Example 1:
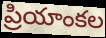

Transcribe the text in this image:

ప్రియాంకల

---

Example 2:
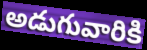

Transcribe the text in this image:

అడుగువారికి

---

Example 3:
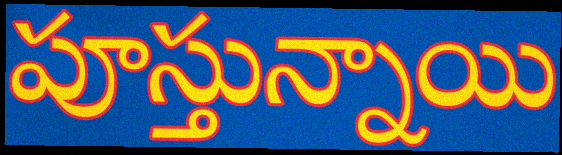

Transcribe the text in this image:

పూస్తున్నాయి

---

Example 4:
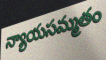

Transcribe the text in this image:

న్యాయసమ్మతం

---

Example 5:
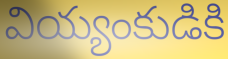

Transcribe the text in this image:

వియ్యంకుడికి